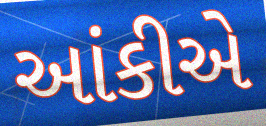
આંકીએ